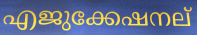
എജുക്കേഷനല്